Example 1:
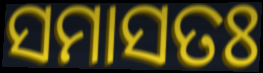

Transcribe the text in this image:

ସମାସତଃ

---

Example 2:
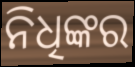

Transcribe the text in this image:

ନିଧିଙ୍କର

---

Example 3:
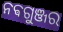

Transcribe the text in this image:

ନଵଗୁଞ୍ଜର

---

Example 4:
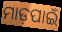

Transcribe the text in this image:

ମାଡ଼ପାଇଁ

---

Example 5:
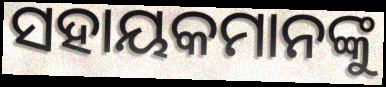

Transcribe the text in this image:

ସହାୟକମାନଙ୍କୁ